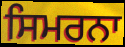
ਸਿਮਰਨਾ